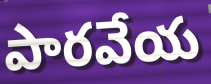
పారవేయ